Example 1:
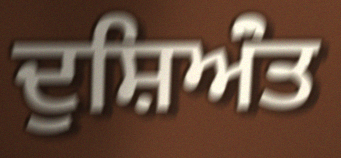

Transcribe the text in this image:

ਦੁਸ਼ਿਅਂੰਤ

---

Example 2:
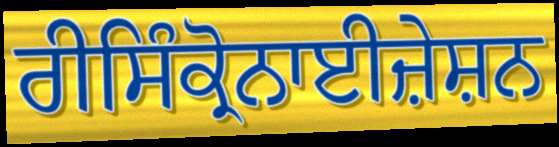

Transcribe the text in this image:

ਰੀਸਿੰਕ੍ਰੋਨਾਈਜ਼ੇਸ਼ਨ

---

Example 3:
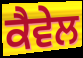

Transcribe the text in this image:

ਕੈਵੇਲ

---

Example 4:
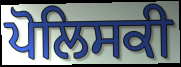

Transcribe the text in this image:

ਪੋਲਿਸਕੀ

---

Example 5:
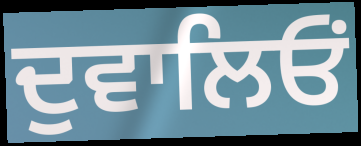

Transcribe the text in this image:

ਦੁਵਾਲਿਓਂ